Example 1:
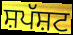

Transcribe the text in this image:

ਸ਼ਪੱਸ਼ਟ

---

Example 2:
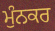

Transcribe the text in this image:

ਮੁੰਨਕਰ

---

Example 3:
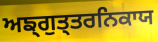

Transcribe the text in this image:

ਅਙ੍ਗੁਤ੍ਤਰਨਿਕਾਯ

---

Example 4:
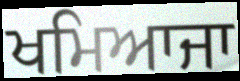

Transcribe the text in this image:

ਖਮਿਆਜਾ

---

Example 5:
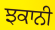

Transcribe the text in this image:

ਝਕਾਨੀ